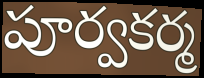
పూర్వకర్మ